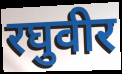
रघुवीर